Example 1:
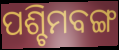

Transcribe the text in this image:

ପଶ୍ଚିମବଙ୍ଗ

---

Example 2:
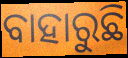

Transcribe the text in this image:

ବାହାରୁଛି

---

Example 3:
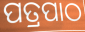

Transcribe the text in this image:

ପତ୍ରପାଠ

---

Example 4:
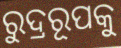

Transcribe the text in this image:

ରୁଦ୍ରରୂପକୁ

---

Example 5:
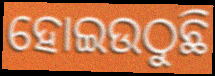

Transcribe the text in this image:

ହୋଇଉଠୁଛି